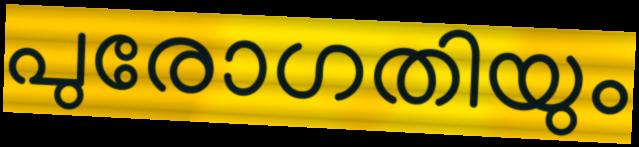
പുരോഗതിയും